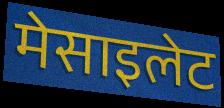
मेसाइलेट